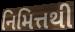
નિમિત્તથી